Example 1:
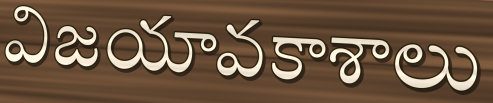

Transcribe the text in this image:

విజయావకాశాలు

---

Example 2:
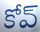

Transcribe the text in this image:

కోవ్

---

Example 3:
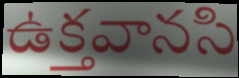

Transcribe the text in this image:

ఉక్తవానసి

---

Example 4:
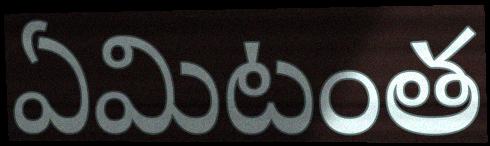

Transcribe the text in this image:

ఏమిటంత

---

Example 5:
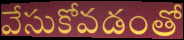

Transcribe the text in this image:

వేసుకోవడంతో